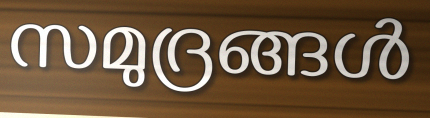
സമുദ്രങ്ങൾ